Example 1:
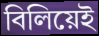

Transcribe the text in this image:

বিলিয়েই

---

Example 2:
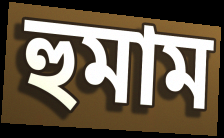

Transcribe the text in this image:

হুমাম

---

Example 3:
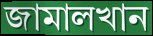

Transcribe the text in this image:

জামালখান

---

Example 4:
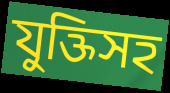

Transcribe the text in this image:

যুক্তিসহ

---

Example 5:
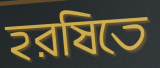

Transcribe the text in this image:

হরষিতে